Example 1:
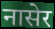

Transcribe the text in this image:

नासेर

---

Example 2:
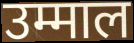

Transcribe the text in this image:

उम्माल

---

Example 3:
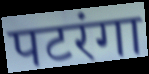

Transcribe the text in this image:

पटरंगा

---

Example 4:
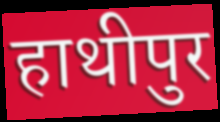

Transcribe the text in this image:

हाथीपुर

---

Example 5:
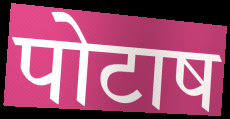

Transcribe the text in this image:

पोटाष